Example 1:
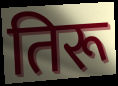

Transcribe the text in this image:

तिरू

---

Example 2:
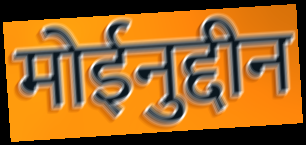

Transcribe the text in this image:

मोईनुद्दीन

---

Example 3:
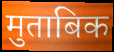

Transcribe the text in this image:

मुताबिक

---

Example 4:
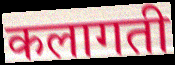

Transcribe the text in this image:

कलागती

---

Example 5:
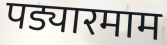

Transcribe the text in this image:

पड्यारमाम